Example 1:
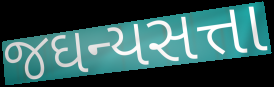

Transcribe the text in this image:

જઘન્યસત્તા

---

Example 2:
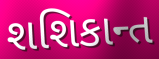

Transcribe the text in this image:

શશિકાન્ત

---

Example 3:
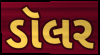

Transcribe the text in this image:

ડૉલર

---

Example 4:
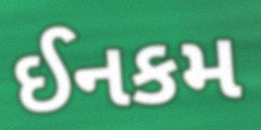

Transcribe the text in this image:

ઈનકમ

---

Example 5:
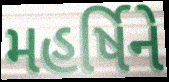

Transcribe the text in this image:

મહર્ષિને